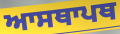
ਆਸਥਾਪਥ